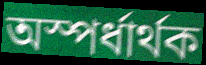
অস্পৰ্ধাৰ্থক